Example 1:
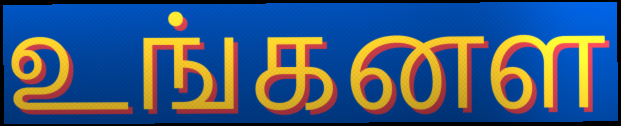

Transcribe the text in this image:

உங்கனள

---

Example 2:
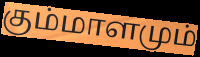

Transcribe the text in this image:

கும்மாளமும்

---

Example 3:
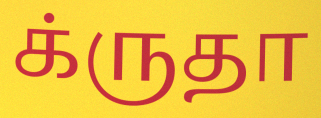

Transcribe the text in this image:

க்ருதா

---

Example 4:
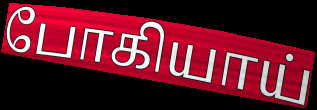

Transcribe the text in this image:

போகியாய்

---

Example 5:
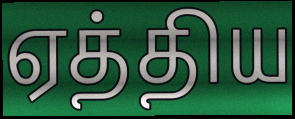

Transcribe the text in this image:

ஏத்திய